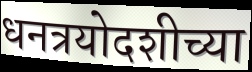
धनत्रयोदशीच्या